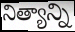
నిత్యాన్ని